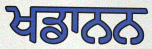
ਖਡਾਨਨ